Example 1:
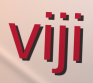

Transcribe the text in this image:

viji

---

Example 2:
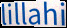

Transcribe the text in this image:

lillahi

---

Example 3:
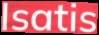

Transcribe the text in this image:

Isatis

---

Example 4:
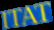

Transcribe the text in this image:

ITAT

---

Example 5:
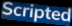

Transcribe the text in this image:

Scripted